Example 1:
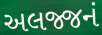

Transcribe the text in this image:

અલજ્જનં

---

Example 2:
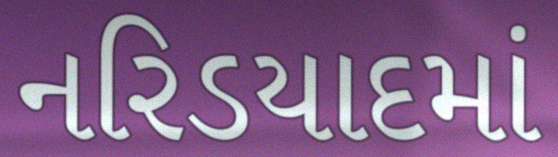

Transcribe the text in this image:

નરિડયાદમાં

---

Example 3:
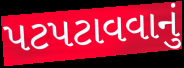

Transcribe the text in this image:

પટપટાવવાનું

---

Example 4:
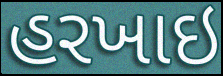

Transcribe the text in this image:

હરખાઇ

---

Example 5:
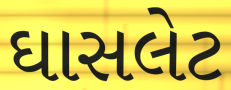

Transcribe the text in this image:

ઘાસલેટ